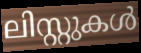
ലിസ്റ്റുകൾ